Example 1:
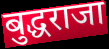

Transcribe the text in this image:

बुद्धराजा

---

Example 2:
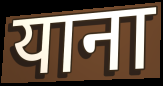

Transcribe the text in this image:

याना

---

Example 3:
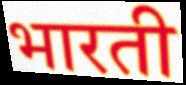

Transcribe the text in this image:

भारती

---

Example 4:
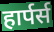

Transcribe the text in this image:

हार्पर्स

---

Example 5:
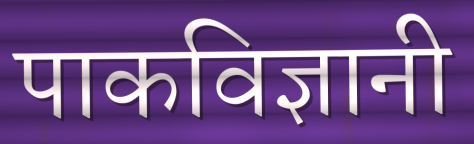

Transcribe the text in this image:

पाकविज्ञानी